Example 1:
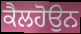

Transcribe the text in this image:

ਕੈਲਹੋਉਨ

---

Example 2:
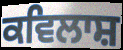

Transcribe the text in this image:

ਕਵਿਲਾਸ਼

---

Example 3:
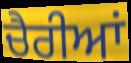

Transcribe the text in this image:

ਚੈਰੀਆਂ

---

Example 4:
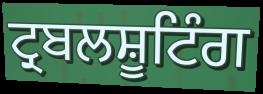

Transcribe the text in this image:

ਟ੍ਰਬਲਸ਼ੂਟਿੰਗ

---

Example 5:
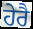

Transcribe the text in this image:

ਹੇਰੈ